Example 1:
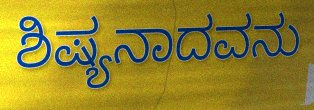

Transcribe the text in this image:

ಶಿಷ್ಯನಾದವನು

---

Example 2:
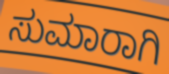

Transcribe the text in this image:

ಸುಮಾರಾಗಿ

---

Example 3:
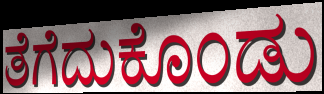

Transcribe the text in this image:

ತೆಗೆದುಕೊಂಡು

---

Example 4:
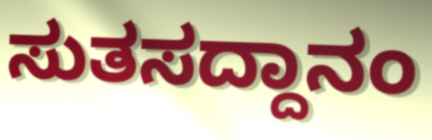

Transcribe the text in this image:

ಸುತಸದ್ದಾನಂ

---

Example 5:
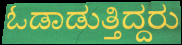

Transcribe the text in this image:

ಓಡಾಡುತ್ತಿದ್ದರು